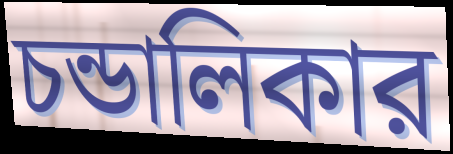
চন্ডালিকার